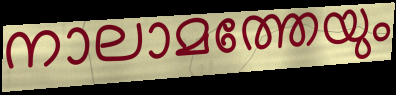
നാലാമത്തേയും